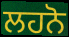
ਲਹਨੋ